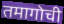
तमागोची